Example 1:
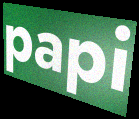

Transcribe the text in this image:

papi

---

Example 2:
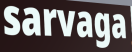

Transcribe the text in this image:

sarvaga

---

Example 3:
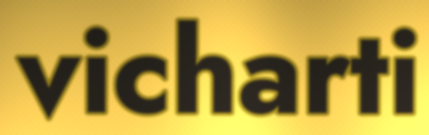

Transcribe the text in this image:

vicharti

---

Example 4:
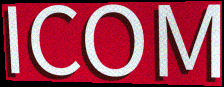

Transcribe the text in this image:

ICOM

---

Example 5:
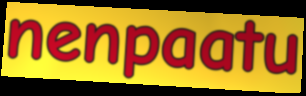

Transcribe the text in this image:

nenpaatu